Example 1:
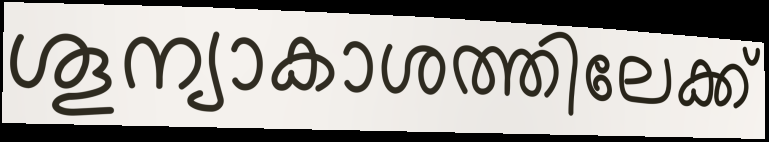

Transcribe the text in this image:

ശൂന്യാകാശത്തിലേക്ക്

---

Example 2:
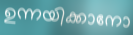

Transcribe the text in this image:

ഉന്നയിക്കാനോ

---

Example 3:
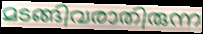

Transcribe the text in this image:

മടങ്ങിവരാതിരുന്ന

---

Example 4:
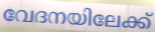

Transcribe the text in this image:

വേദനയിലേക്ക്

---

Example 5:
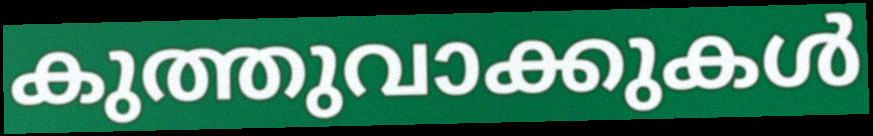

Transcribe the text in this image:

കുത്തുവാക്കുകൾ